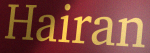
Hairan